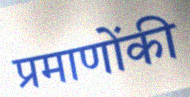
प्रमाणोंकी